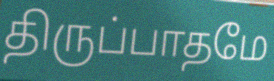
திருப்பாதமே